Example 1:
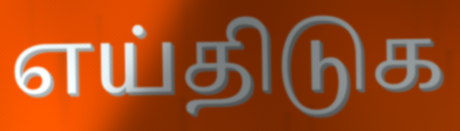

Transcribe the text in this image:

எய்திடுக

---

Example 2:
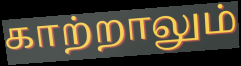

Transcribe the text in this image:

காற்றாலும்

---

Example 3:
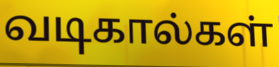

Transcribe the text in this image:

வடிகால்கள்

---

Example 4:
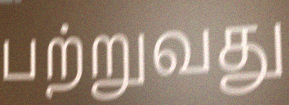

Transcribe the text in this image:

பற்றுவது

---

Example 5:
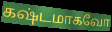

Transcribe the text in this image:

கஷ்டமாகவோ